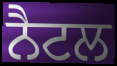
ਨੈਟਲ